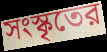
সংস্কৃতের